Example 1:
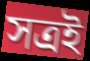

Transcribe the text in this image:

সত্ৰই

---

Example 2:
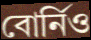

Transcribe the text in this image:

বোৰ্নিও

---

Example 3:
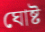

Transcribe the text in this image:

ঘোষ্ট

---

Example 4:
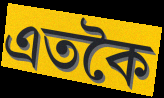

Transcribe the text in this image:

এতকৈ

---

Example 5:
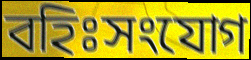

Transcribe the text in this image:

বহিঃসংযোগ